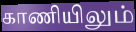
காணியிலும்